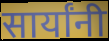
सार्यांनी